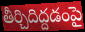
తీర్చిదిద్దడంపై